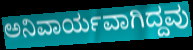
ಅನಿವಾರ್ಯವಾಗಿದ್ದವು